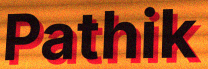
Pathik